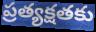
ప్రత్యక్షతకు